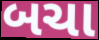
બચા